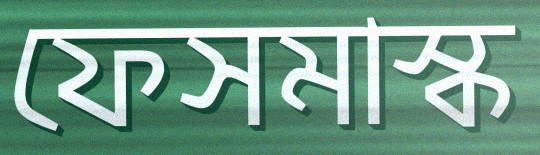
ফেসমাস্ক